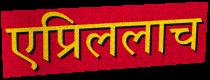
एप्रिललाच